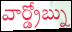
వార్డ్రోబ్ను